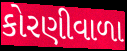
કોરણીવાળા